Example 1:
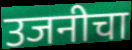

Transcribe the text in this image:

उजनीचा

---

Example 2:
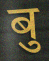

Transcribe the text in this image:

बु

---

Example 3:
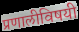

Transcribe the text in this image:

प्रणालीविषयी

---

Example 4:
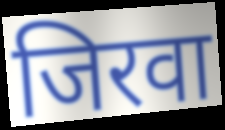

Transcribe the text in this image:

जिरवा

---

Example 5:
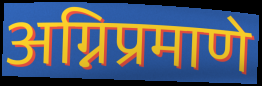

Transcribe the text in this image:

अग्निप्रमाणे